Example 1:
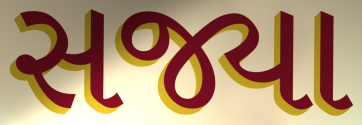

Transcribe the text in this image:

સજ્યા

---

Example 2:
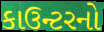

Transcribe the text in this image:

કાઉન્ટરનો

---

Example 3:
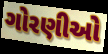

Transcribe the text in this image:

ગોરણીઓ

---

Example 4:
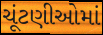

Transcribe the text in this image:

ચૂંટણીઓમાં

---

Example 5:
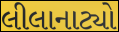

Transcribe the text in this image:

લીલાનાટ્યો